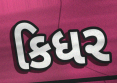
કિધર